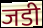
जडी